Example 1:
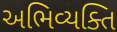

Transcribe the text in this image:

અભિવ્યક્તિ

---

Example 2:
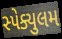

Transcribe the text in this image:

સ્પેક્યુલમ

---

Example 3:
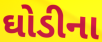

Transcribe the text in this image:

ઘોડીના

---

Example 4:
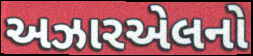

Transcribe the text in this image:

અઝારએલનો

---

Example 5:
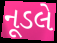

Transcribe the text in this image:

નૂડલે